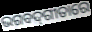
ଭଗବଦ୍‌ଗୀତାରେ